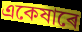
একেষাৰে